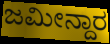
ಜಮೀನ್ದಾರ